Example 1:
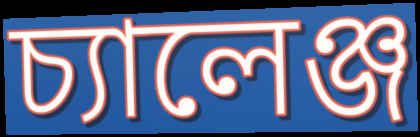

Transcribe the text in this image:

চ্যালেঞ্জ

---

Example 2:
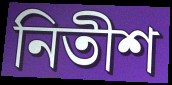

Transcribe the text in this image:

নিতীশ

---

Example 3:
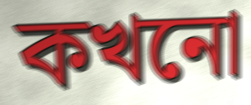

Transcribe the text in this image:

কখনো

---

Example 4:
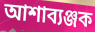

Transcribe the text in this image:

আশাব্যঞ্জক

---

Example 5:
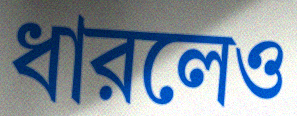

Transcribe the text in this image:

ধারলেও